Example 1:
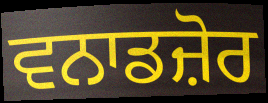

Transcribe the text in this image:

ਵਨਾਡਜ਼ੋਰ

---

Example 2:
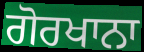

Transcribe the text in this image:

ਗੋਰਖਾਨਾ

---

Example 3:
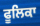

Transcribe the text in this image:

ਫੂਲਿਕਾ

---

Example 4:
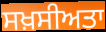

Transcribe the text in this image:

ਸਖ਼ਸੀਅਤਾ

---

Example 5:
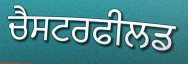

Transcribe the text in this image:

ਚੈਸਟਰਫੀਲਡ